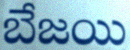
బేజయి